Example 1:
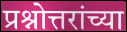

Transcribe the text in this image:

प्रश्नोत्तरांच्या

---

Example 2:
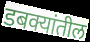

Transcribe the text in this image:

डबक्यांतील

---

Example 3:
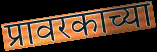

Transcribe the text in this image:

प्रावरकाच्या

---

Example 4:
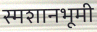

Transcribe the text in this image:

स्मशानभूमी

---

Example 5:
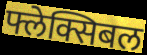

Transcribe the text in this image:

फ्लेक्सिबल